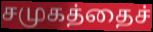
சமுகத்தைச்